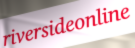
riversideonline